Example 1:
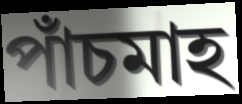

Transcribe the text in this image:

পাঁচমাহ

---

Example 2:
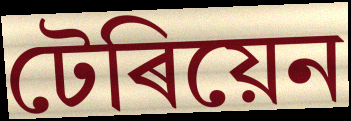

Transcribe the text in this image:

টেৰিয়েন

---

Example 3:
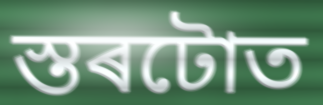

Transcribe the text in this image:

স্তৰটোত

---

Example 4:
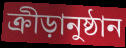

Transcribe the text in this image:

ক্ৰীড়ানুষ্ঠান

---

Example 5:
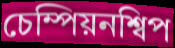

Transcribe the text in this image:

চেম্পিয়নশ্বিপ